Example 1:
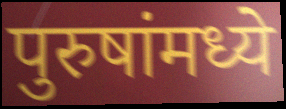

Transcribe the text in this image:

पुरुषांमध्ये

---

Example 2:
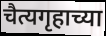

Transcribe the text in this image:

चैत्यगृहाच्या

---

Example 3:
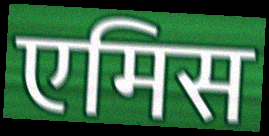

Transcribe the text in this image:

एमिस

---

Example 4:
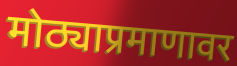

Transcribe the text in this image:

मोठ्याप्रमाणावर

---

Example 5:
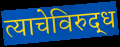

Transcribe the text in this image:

त्याचेविरुद्ध